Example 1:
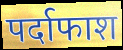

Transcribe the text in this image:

पर्दाफाश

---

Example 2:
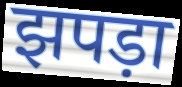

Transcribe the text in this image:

झपड़ा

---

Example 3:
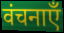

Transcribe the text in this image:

वंचनाएँ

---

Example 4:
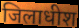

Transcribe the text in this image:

जिलाधीश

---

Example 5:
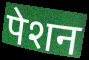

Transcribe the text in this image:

पेशन